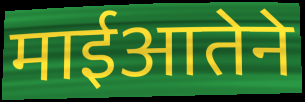
माईआतेने